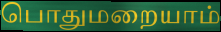
பொதுமறையாம்